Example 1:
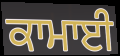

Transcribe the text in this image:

ਕਾਮਾਈ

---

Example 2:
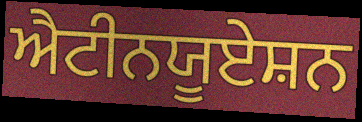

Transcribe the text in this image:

ਐਟੀਨਯੂਏਸ਼ਨ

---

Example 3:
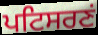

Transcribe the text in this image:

ਪਟਿਸਰਣਂ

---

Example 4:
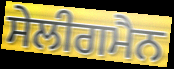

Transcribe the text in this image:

ਸੇਲੀਗਮੈਨ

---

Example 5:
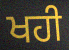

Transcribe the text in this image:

ਖਹੀ